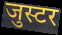
जुस्टर